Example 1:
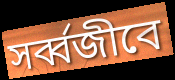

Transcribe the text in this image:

সর্ব্বজীবে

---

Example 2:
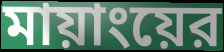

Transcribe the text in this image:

মায়াংয়ের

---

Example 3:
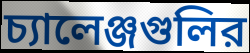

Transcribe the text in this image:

চ্যালেঞ্জগুলির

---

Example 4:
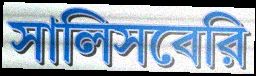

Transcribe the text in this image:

সালিসবেরি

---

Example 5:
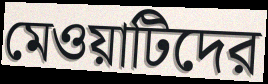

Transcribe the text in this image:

মেওয়াটিদের